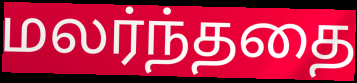
மலர்ந்ததை